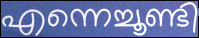
എന്നെച്ചൂണ്ടി